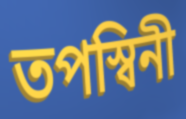
তপস্বিনী